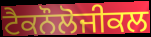
ਟੈਕਨੌਲੋਜੀਕਲ